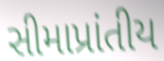
સીમાપ્રાંતીય